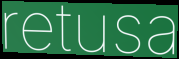
retusa